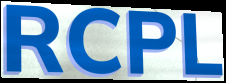
RCPL